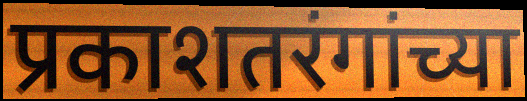
प्रकाशतरंगांच्या